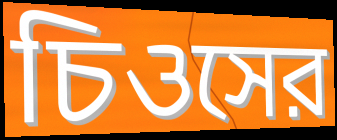
চিওসের